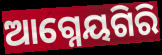
ଆଗ୍ନେୟଗିରି